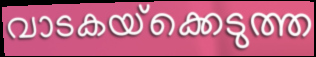
വാടകയ്‌ക്കെടുത്ത